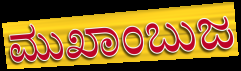
ಮುಖಾಂಬುಜ